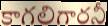
కాగలిగారనీ